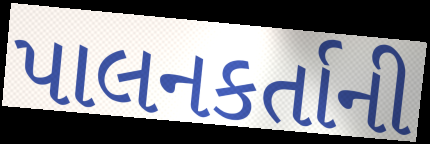
પાલનકર્તાની